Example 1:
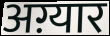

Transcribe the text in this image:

अग़्यार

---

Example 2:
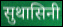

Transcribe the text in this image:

सुथासिनी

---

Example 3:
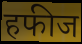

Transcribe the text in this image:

हफीज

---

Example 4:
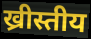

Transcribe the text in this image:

ख्रीस्तीय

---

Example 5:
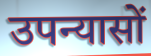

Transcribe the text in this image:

उपन्यासों